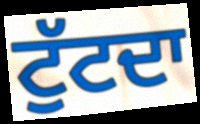
ਟੁੱਟਦਾ